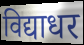
विद्याधर